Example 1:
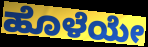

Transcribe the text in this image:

ಹೊಳೆಯೇ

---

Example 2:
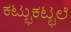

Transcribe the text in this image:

ಕಟ್ಟುಕಟ್ಟಲೆ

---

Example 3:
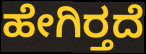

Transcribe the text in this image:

ಹೇಗಿರ್‍ತದೆ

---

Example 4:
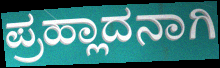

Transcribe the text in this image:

ಪ್ರಹ್ಲಾದನಾಗಿ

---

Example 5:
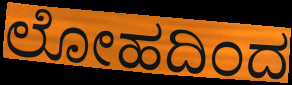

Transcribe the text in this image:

ಲೋಹದಿಂದ